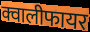
क्‍वालीफायर